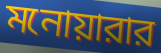
মনোয়ারার